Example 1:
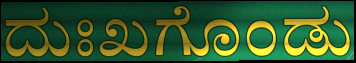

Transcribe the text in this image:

ದುಃಖಗೊಂಡು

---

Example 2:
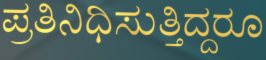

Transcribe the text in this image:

ಪ್ರತಿನಿಧಿಸುತ್ತಿದ್ದರೂ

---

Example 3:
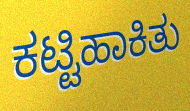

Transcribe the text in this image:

ಕಟ್ಟಿಹಾಕಿತು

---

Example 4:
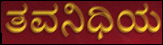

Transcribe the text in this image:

ತವನಿಧಿಯ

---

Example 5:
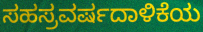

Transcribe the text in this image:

ಸಹಸ್ರವರ್ಷದಾಳಿಕೆಯ